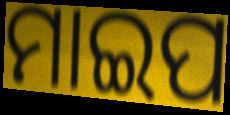
ମାଇପ